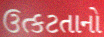
ઉત્કટતાનો